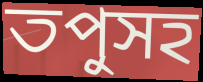
তপুসহ